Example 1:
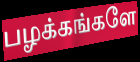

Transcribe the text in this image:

பழக்கங்களே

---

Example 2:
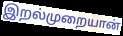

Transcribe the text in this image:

இறல்முறையான்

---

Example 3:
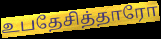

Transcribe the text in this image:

உபதேசித்தாரோ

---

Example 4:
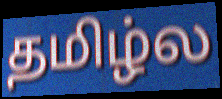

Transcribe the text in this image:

தமிழ்ல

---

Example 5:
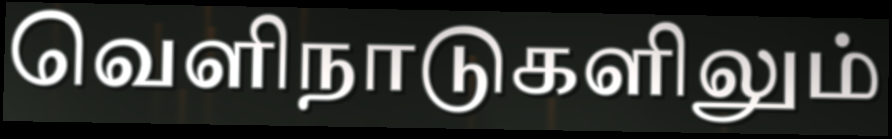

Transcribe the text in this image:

வெளிநாடுகளிலும்